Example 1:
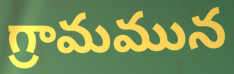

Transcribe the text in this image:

గ్రామమున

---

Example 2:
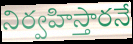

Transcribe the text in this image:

నిర్వహిస్తారనే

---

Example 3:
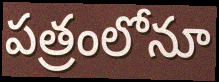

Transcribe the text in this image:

పత్రంలోనూ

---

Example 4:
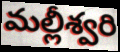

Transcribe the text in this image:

మల్లీశ్వరి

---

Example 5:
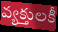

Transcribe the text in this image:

వ్యక్తులకీ